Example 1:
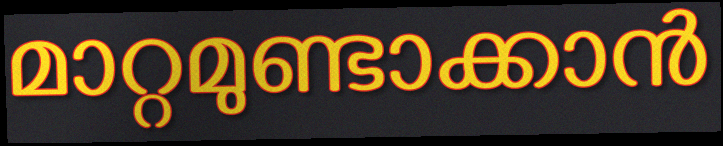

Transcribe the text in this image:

മാറ്റമുണ്ടാക്കാൻ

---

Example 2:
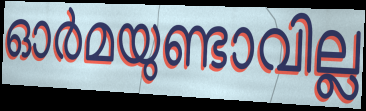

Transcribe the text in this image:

ഓർമയുണ്ടാവില്ല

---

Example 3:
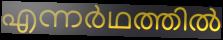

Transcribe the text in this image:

എന്നർഥത്തിൽ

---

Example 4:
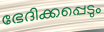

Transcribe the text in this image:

ഭേദിക്കപ്പെടും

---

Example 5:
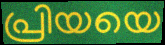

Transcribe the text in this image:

പ്രിയയെ